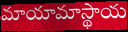
మాయామాస్థాయ